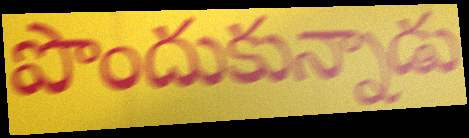
పొందుకున్నాడు